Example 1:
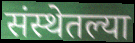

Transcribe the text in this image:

संस्थेतल्या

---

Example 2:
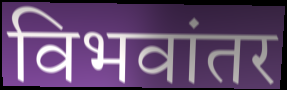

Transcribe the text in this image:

विभवांतर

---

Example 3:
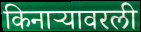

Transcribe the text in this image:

किनाऱ्यावरली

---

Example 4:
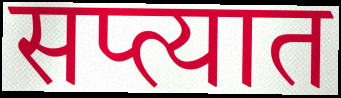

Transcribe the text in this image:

सप्त्यात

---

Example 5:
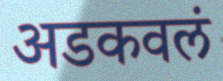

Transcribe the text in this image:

अडकवलं